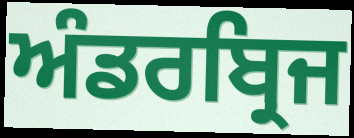
ਅੰਡਰਬ੍ਰਿਜ